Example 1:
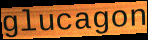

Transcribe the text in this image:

glucagon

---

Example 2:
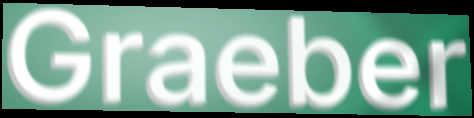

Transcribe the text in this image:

Graeber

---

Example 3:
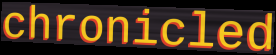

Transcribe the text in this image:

chronicled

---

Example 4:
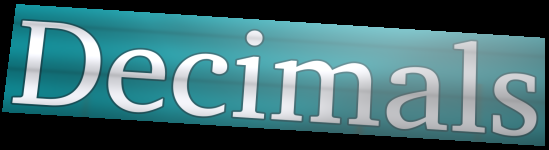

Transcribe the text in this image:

Decimals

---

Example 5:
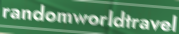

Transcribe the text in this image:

randomworldtravel